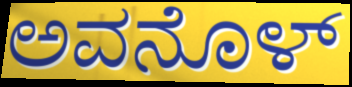
ಅವನೊಳ್